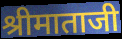
श्रीमाताजी